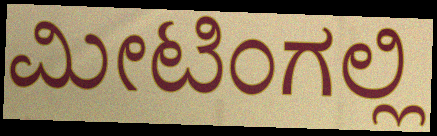
ಮೀಟಿಂಗಲ್ಲಿ